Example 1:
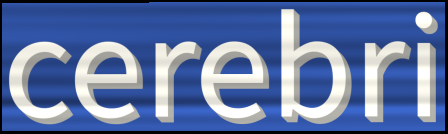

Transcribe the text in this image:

cerebri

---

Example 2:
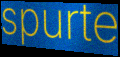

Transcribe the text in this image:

spurte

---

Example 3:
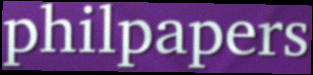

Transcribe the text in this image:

philpapers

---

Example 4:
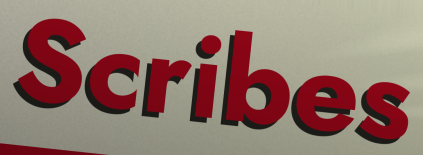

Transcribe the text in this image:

Scribes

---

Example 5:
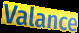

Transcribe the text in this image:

Valance